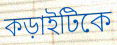
কড়াইটিকে